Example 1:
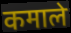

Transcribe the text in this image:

कमाले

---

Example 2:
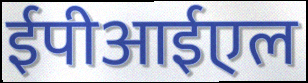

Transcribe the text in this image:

ईपीआईएल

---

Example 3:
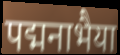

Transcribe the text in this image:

पद्मनाभैया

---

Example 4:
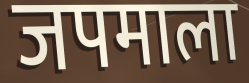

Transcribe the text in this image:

जपमाला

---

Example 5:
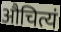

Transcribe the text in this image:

औचित्यं